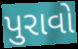
પુરાવો